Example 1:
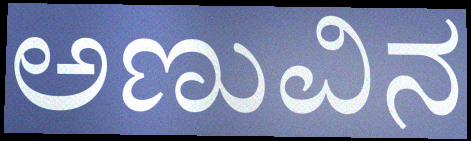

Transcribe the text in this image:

ಅಣುವಿನ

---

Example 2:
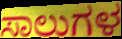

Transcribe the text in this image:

ಸಾಲುಗಳ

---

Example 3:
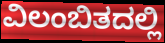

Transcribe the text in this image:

ವಿಲಂಬಿತದಲ್ಲಿ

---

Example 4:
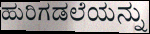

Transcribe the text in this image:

ಹುರಿಗಡಲೆಯನ್ನು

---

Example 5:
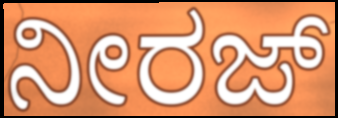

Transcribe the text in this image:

ನೀರಜ್